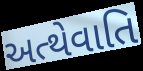
અત્થેવાતિ